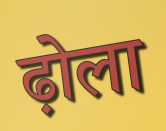
ढ़ोला